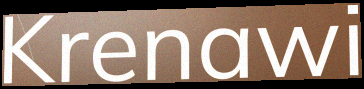
Krenawi